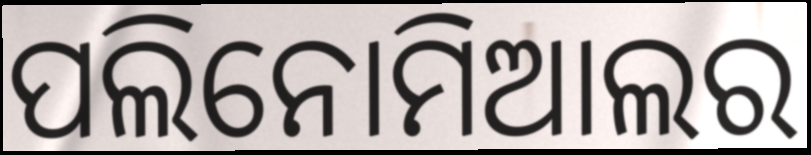
ପଲିନୋମିଆଲର